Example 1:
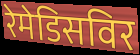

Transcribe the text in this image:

रेमेडिसविर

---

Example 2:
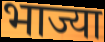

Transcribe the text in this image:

भाज्या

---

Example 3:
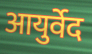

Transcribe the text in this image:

आयुर्वेद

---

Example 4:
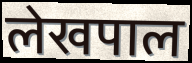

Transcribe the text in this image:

लेखपाल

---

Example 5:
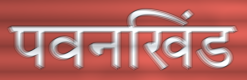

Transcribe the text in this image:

पवनखिंड